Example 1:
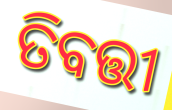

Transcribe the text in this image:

ତିବତ୍ତୀ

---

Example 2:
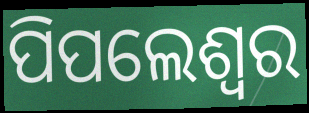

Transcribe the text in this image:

ପିପଲେଶ୍ୱର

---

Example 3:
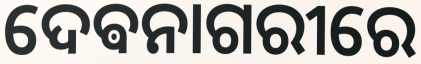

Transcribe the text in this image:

ଦେଵନାଗରୀରେ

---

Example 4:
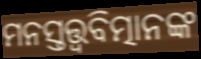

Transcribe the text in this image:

ମନସ୍ତତ୍ତ୍ବବିତ୍ମାନଙ୍କ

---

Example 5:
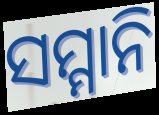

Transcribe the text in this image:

ସମ୍ମାନି